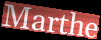
Marthe